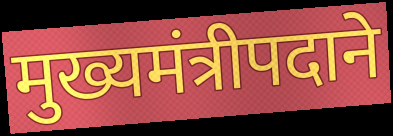
मुख्यमंत्रीपदाने